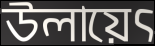
উলায়েৎ